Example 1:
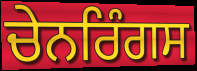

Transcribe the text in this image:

ਚੇਨਰਿੰਗਸ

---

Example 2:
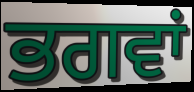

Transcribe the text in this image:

ਭਗਵਾਂ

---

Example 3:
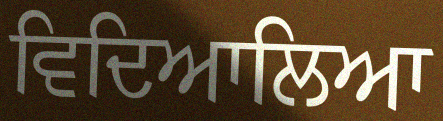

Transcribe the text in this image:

ਵਿਦਿਆਲਿਆ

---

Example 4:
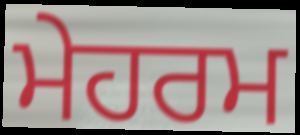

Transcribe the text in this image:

ਮੇਹਰਮ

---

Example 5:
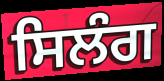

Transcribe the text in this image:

ਸਿਲੰਗ